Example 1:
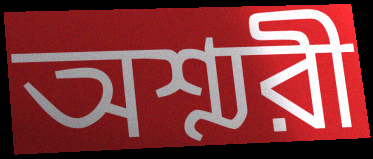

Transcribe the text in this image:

অশ্মরী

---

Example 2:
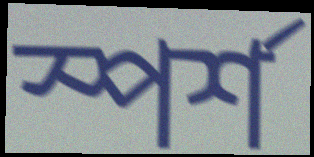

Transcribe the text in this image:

স্পর্শ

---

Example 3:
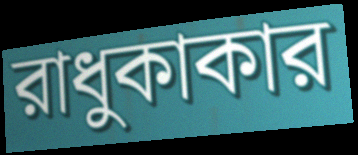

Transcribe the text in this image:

রাধুকাকার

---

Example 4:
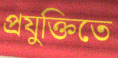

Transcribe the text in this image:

প্রযুক্তিতে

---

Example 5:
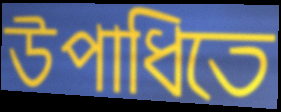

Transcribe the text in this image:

উপাধিতে